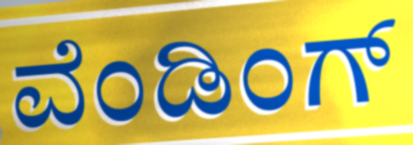
ವೆಂಡಿಂಗ್